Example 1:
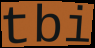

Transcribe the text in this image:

tbi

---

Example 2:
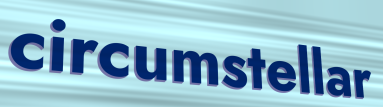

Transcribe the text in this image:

circumstellar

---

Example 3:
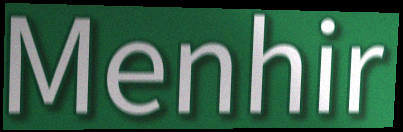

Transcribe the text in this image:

Menhir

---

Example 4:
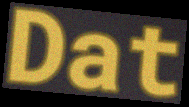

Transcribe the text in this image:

Dat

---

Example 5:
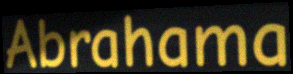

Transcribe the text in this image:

Abrahama